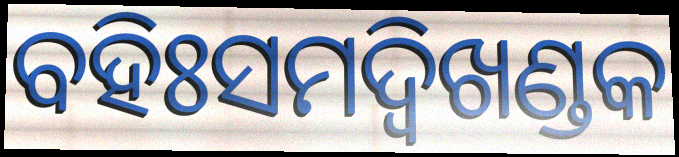
ବହିଃସମଦ୍ୱିଖଣ୍ଡକ